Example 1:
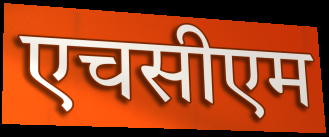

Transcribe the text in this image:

एचसीएम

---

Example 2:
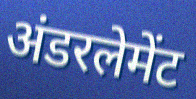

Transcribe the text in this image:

अंडरलेमेंट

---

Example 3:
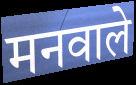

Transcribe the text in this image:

मनवाले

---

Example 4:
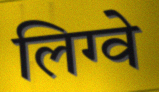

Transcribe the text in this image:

लिग्वे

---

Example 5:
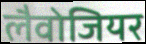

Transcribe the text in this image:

लैवोजियर